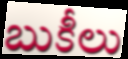
బుకీలు